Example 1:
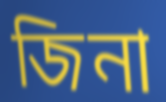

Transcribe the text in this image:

জিনা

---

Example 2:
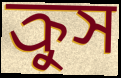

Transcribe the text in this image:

ক্রুস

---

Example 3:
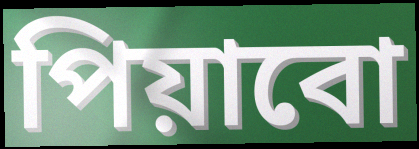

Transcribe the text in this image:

পিয়াবো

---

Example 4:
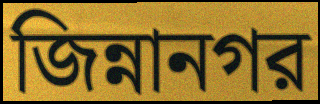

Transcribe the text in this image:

জিন্নানগর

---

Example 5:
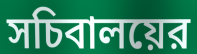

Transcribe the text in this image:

সচিবালয়ের